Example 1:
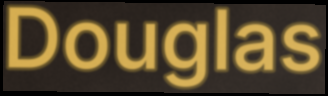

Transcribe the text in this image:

Douglas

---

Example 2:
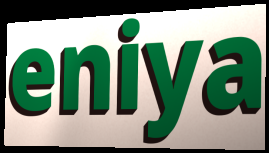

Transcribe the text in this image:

eniya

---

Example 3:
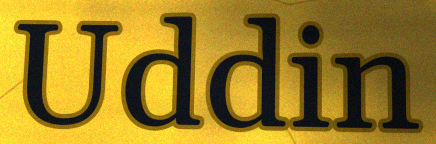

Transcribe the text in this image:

Uddin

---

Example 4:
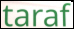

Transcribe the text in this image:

taraf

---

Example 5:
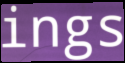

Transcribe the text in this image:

ings